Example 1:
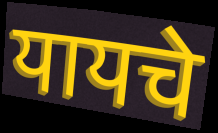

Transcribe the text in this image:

यायचे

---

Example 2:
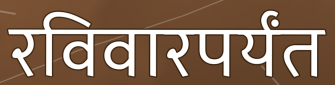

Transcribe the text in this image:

रविवारपर्यंत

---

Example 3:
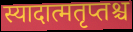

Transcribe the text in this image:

स्यादात्मतृप्तश्च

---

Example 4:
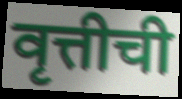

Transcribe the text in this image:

वृत्तीची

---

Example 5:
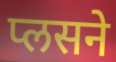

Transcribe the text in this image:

प्लसने